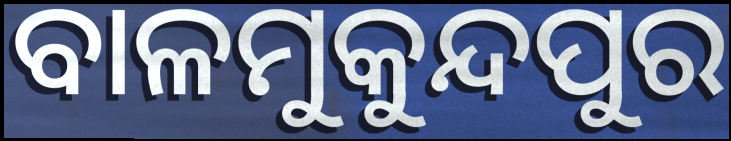
ବାଳମୁକୁନ୍ଦପୁର